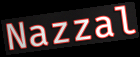
Nazzal